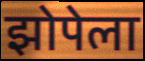
झोपेला